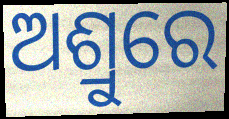
ଅଶ୍ରୁରେ